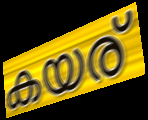
കയര്